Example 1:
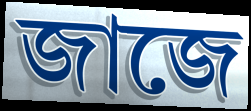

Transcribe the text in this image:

জাজে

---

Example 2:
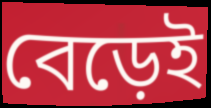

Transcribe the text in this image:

বেড়েই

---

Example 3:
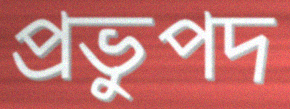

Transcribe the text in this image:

প্রভুপদ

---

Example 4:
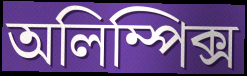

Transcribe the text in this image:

অলিম্পিক্স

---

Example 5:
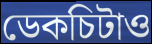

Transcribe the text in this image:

ডেকচিটাও